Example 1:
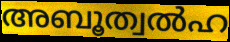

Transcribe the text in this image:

അബൂത്വൽഹ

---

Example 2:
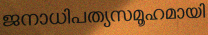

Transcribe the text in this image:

ജനാധിപത്യസമൂഹമായി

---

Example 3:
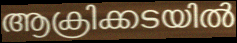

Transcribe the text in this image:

ആക്രിക്കടയിൽ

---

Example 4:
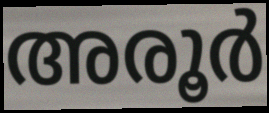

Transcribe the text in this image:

അരൂർ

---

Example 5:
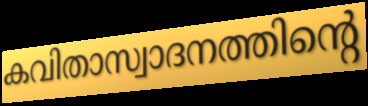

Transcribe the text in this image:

കവിതാസ്വാദനത്തിന്റെ